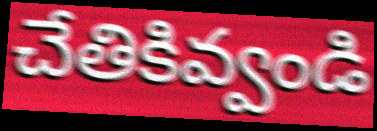
చేతికివ్వండి